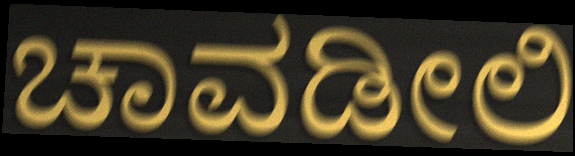
ಚಾವಡೀಲಿ